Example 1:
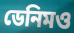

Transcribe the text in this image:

ডেনিমও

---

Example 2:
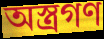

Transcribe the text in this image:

অস্ত্রগণ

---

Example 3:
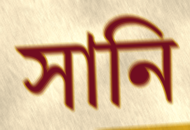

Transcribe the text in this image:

সানি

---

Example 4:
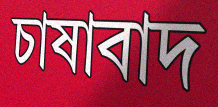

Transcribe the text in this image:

চাষাবাদ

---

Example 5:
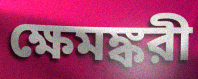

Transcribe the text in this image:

ক্ষেমঙ্করী